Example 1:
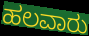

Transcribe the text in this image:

ಹಲವಾರು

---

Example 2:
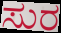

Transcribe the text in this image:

ಸುರ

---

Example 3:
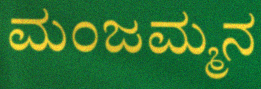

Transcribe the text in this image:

ಮಂಜಮ್ಮನ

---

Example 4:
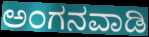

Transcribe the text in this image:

ಅಂಗನವಾಡಿ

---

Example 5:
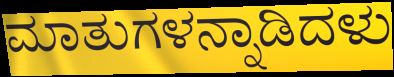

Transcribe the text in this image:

ಮಾತುಗಳನ್ನಾಡಿದಳು